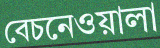
বেচনেওয়ালা